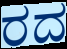
ರದ